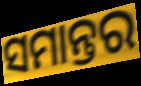
ସମାନ୍ତର